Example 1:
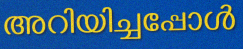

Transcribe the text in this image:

അറിയിച്ചപ്പോൾ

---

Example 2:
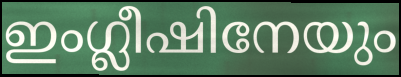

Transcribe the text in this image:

ഇംഗ്ലീഷിനേയും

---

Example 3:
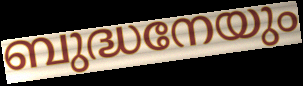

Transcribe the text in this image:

ബുദ്ധനേയും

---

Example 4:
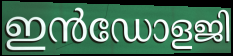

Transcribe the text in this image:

ഇൻഡോളജി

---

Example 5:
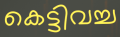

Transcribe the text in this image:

കെട്ടിവച്ച